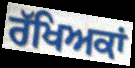
ਰੱਖਿਅਕਾਂ